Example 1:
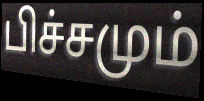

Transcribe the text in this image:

பிச்சமும்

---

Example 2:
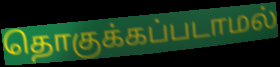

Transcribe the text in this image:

தொகுக்கப்படாமல்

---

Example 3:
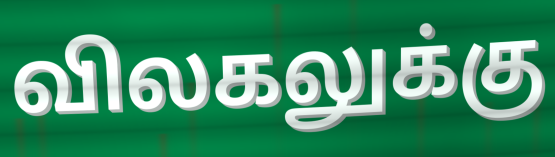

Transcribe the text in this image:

விலகலுக்கு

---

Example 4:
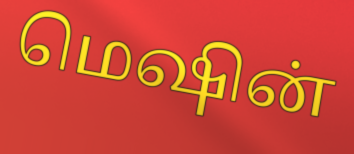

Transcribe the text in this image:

மெஷின்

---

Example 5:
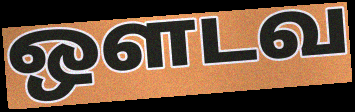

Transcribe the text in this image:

ஔடவ